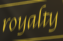
royalty